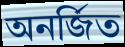
অনর্জিত